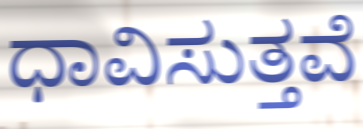
ಧಾವಿಸುತ್ತವೆ